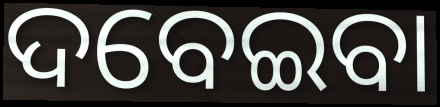
ଦବେଇବା